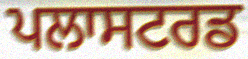
ਪਲਾਸਟਰਡ